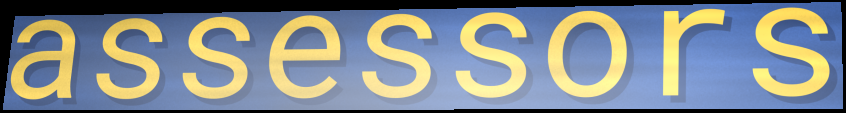
assessors